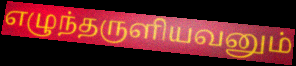
எழுந்தருளியவனும்